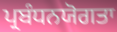
ਪ੍ਰਬੰਧਨਯੋਗਤਾ